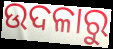
ଉଦଳାରୁ